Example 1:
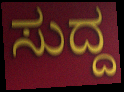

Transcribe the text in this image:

ಸುದ್ದ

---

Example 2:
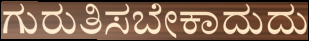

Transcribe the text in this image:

ಗುರುತಿಸಬೇಕಾದುದು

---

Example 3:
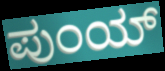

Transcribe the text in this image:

ಪುಂಯ್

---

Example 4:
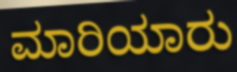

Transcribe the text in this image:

ಮಾರಿಯಾರು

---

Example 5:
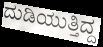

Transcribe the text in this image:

ದುಡಿಯುತ್ತಿದ್ದ